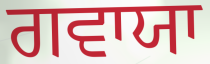
ਗਵਾਯਾ